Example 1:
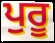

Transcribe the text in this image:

ਪੁਰੂ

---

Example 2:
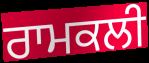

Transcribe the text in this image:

ਰਾਮਕਲੀ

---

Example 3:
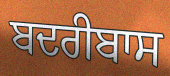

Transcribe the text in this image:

ਬਦਰੀਬਾਸ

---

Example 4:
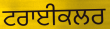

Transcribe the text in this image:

ਟਰਾਈਕਲਰ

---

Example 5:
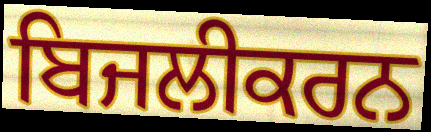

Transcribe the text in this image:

ਬਿਜਲੀਕਰਨ